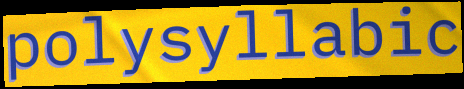
polysyllabic